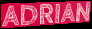
ADRIAN